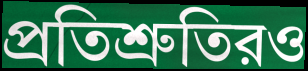
প্রতিশ্রুতিরও